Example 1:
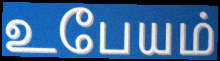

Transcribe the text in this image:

உபேயம்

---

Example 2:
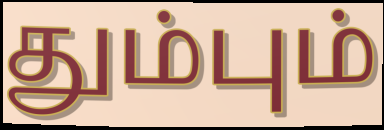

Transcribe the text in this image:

தும்பும்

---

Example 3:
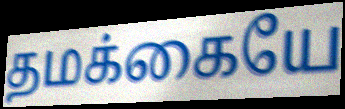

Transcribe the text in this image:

தமக்கையே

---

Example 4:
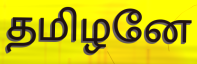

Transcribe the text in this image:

தமிழனே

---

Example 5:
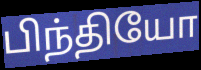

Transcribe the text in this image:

பிந்தியோ